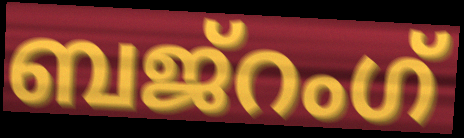
ബജ്റംഗ്